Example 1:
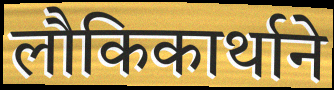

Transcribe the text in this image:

लौकिकार्थाने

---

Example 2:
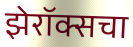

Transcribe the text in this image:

झेरॉक्सचा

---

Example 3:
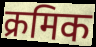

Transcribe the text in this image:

क्रमिक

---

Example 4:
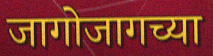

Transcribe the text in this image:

जागोजागच्या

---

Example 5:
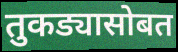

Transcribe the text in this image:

तुकड्यासोबत